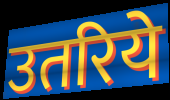
उतरिये